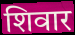
शिवार